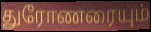
துரோணரையும்